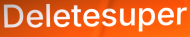
Deletesuper